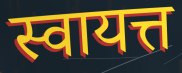
स्वायत्त